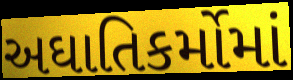
અઘાતિકર્મોમાં